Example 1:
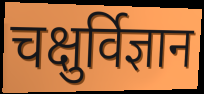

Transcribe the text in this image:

चक्षुर्विज्ञान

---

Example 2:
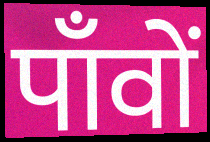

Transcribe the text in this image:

पाँवों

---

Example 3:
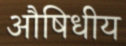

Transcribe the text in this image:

औषिधीय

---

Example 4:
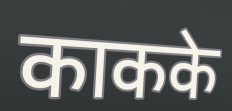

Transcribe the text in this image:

काकके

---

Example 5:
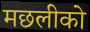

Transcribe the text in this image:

मछलीको